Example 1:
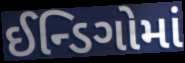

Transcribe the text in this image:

ઈન્ડિગોમાં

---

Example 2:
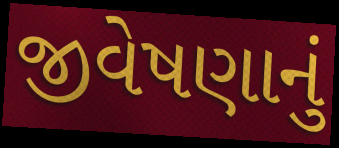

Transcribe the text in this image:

જીવેષણાનું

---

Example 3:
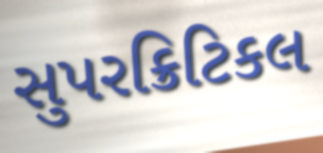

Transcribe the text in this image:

સુપરક્રિટિકલ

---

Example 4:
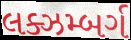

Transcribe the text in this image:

લક્ઝમ્બર્ગ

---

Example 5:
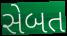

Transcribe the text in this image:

સેબત